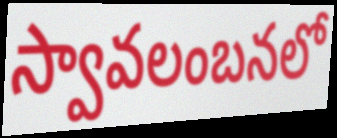
స్వావలంబనలో